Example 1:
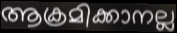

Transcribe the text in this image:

ആക്രമിക്കാനല്ല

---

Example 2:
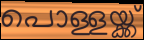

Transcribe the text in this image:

പൊള്ളയ്ക്ക്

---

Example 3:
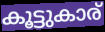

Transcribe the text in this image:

കൂട്ടുകാര്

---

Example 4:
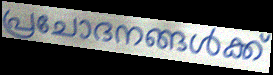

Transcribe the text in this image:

പ്രചോദനങ്ങൾക്ക്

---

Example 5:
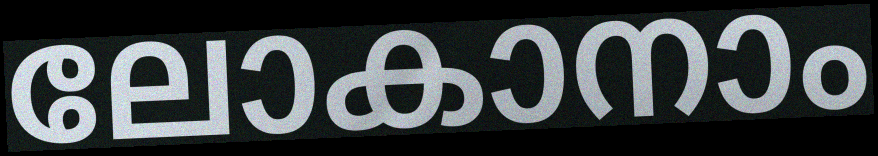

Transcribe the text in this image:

ലോകാനാം